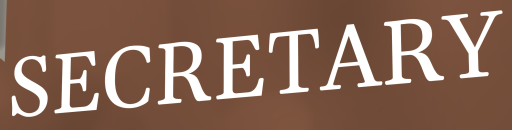
SECRETARY